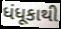
ધંધૂકાથી